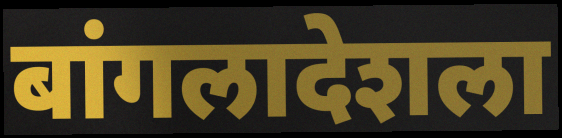
बांगलादेशला